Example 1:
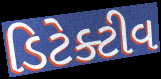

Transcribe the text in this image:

ડિટેક્ટીવ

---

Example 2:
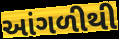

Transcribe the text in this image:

આંગળીથી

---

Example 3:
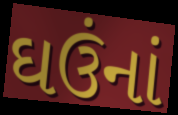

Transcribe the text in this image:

ઘઉંનાં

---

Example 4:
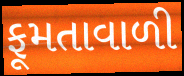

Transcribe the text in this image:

ફૂમતાવાળી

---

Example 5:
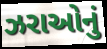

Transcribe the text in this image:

ઝરાઓનું